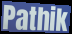
Pathik